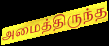
அமைத்திருந்த